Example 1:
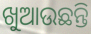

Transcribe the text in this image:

ଖୁଆଉଛନ୍ତି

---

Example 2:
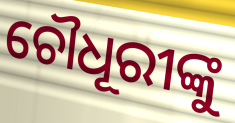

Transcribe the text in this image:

ଚୌଧୂରୀଙ୍କୁ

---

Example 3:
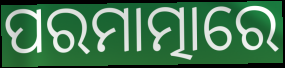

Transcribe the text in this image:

ପରମାତ୍ମାରେ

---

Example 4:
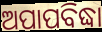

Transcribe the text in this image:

ଅପାପବିଦ୍ଧା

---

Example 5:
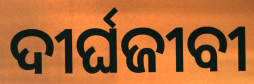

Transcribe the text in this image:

ଦୀର୍ଘଜୀବୀ